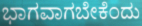
ಭಾಗವಾಗಬೇಕೆಂದು